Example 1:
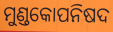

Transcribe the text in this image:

ମୁଣ୍ଡକୋପନିଷଦ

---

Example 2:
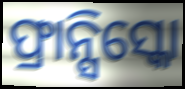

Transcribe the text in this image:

ଫ୍ରାନ୍ସିସ୍କୋ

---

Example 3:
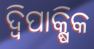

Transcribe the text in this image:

ଦ୍ବିପାକ୍ଷିକ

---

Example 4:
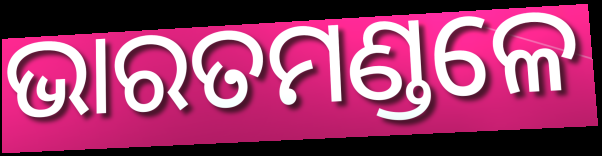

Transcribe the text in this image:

ଭାରତମଣ୍ଡଳେ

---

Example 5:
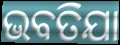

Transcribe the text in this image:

ଭବତିଯା